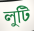
লুটি